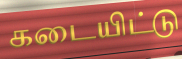
கடையிட்டு